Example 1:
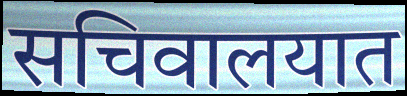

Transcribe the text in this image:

सचिवालयात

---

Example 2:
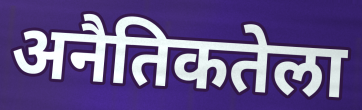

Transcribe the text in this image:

अनैतिकतेला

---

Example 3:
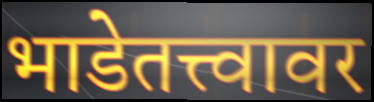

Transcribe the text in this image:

भाडेतत्त्वावर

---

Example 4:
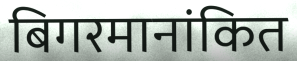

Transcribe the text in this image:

बिगरमानांकित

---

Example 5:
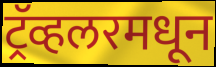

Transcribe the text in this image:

ट्रॅव्हलरमधून